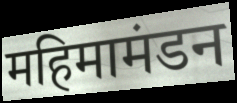
महिमामंडन